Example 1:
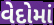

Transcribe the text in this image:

વેદોમાં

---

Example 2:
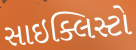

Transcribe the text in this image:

સાઇક્લિસ્ટો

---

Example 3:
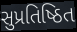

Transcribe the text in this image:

સુપ્રતિષ્ઠિત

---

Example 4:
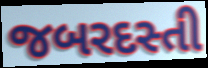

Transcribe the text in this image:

જબરદસ્તી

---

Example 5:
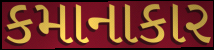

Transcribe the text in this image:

કમાનાકાર